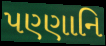
પણ્ણાનિ